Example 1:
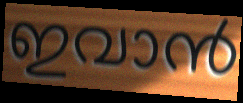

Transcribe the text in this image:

ഇവാൻ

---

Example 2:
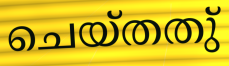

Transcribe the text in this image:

ചെയ്തതു്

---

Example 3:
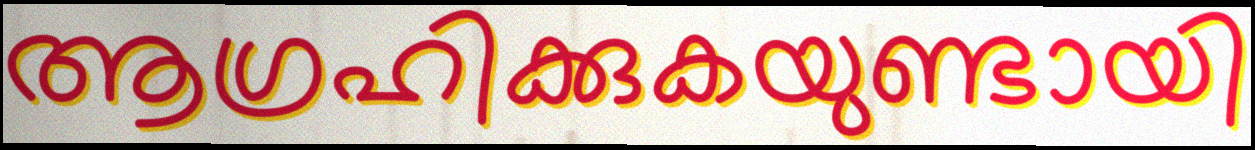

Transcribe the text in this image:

ആഗ്രഹിക്കുകയുണ്ടായി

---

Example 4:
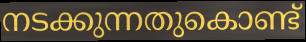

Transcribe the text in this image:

നടക്കുന്നതുകൊണ്ട്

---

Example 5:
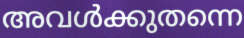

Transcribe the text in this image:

അവൾക്കുതന്നെ